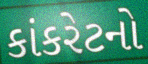
કાંકરેટનો